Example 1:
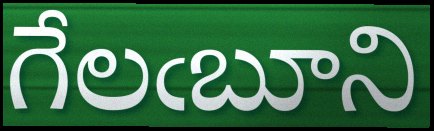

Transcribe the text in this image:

గేలఁబూని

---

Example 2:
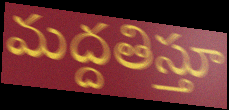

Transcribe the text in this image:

మద్దతిస్తూ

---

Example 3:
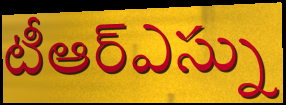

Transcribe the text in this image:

టీఆర్ఎస్ను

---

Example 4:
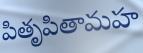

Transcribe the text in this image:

పితృపితామహ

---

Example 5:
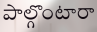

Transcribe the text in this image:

పాల్గొంటారా